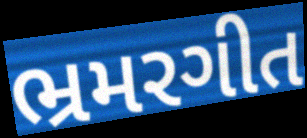
ભ્રમરગીત